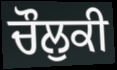
ਚੌਲੁਕੀ